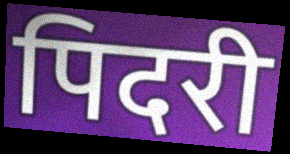
पिदरी